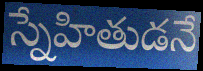
స్నేహితుడనే